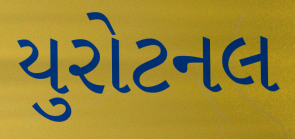
યુરોટનલ